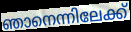
ഞാനെന്നിലേക്ക്